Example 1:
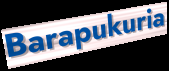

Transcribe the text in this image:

Barapukuria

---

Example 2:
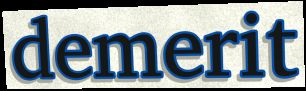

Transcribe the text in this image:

demerit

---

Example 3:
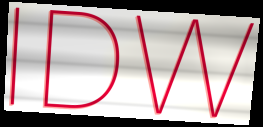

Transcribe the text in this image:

IDW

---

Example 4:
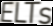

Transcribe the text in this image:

ELTs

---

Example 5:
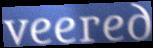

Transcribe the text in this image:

veered